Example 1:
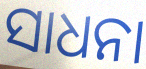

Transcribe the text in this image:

ସାଧନା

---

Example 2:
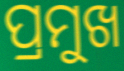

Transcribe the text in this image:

ପ୍ରମୁଖ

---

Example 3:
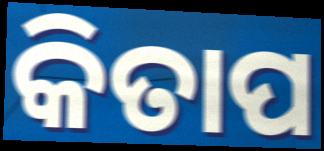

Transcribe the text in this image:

କିତାପ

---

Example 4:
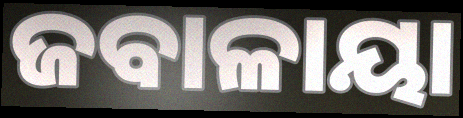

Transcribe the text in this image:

ଜବାଳାୟା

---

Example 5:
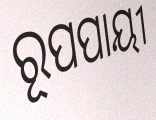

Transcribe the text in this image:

ରୂପପାୟୀ